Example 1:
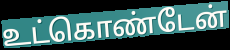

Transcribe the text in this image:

உட்கொண்டேன்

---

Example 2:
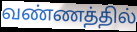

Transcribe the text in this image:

வண்ணத்தில்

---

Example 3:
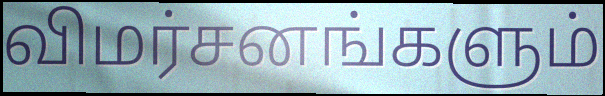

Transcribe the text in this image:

விமர்சனங்களும்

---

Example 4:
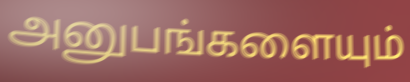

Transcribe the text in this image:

அனுபங்களையும்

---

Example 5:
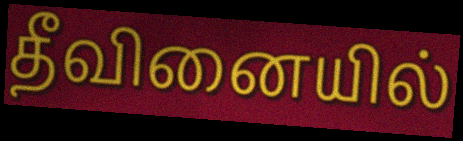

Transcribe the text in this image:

தீவினையில்